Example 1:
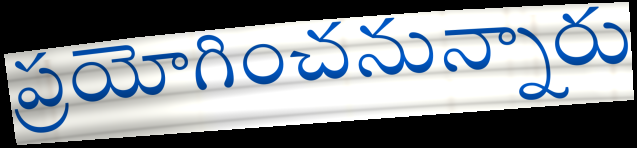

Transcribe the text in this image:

ప్రయోగించనున్నారు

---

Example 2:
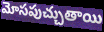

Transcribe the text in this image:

మోసపుచ్చుతాయి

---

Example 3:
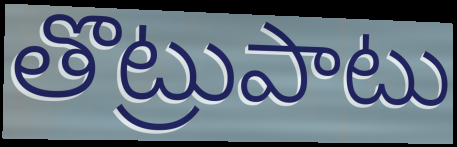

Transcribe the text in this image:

తొట్రుపాటు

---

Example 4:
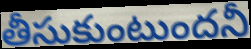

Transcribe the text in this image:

తీసుకుంటుందనీ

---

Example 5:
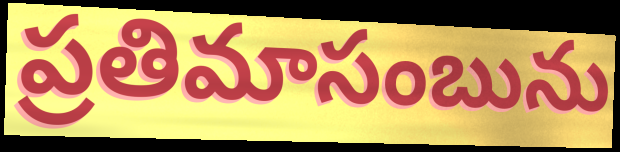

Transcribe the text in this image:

ప్రతిమాసంబును